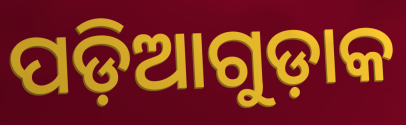
ପଡ଼ିଆଗୁଡ଼ାକ